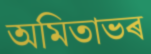
অমিতাভৰ